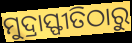
ମୁଦ୍ରାସ୍ଫୀତିଠାରୁ